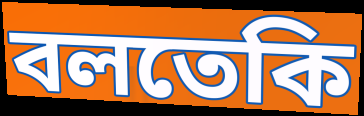
বলতেকি